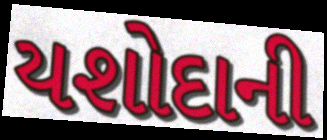
યશોદાની